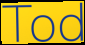
Tod